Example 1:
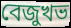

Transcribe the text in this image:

বেজুখভ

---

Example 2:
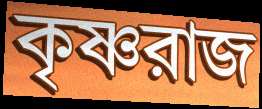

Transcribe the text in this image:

কৃষ্ণরাজ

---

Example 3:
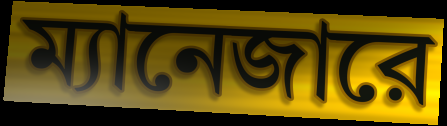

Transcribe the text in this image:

ম্যানেজারে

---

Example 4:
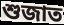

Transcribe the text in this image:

শুজাত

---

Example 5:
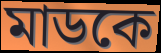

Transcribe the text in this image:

মাডকে